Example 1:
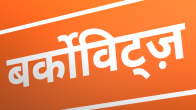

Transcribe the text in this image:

बर्कोविट्ज़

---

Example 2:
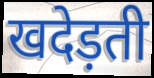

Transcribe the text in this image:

खदेड़ती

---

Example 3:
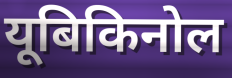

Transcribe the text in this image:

यूबिकिनोल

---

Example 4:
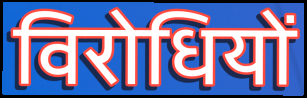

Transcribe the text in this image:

विरोधियों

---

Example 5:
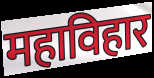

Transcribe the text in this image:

महाविहार